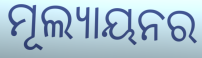
ମୂଲ୍ୟାୟନର